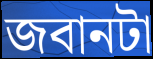
জবানটা